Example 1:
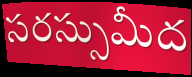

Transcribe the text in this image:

సరస్సుమీద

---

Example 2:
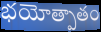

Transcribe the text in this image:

భయోత్పాతం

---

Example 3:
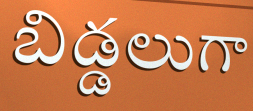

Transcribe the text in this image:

బిడ్డలుగా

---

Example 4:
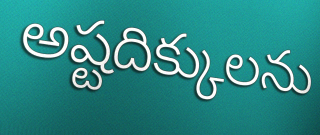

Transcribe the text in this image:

అష్టదిక్కులను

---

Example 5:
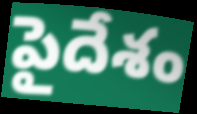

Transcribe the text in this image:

పైదేశం